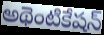
అథెంటికేషన్